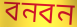
বনবন